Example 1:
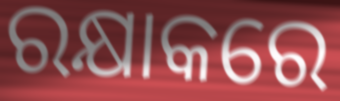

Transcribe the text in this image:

ରକ୍ଷାକରେ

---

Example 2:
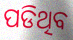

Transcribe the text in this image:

ପଡିଥିବ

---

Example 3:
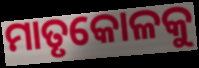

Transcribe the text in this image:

ମାତୃକୋଳକୁ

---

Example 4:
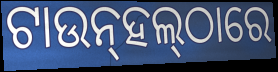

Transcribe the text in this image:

ଟାଉନ୍‌ହଲ୍‌ଠାରେ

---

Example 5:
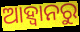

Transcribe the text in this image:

ଆହ୍ବାନରୁ